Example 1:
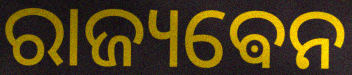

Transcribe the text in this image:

ରାଜ୍ୟଵେନ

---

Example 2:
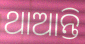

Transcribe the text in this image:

ଥାଆନ୍ତି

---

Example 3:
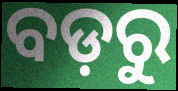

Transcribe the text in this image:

ବଡ଼ରୁ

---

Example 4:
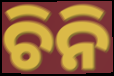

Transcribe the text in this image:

ଚିନି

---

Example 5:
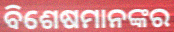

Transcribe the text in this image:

ବିଶେଷମାନଙ୍କର